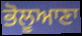
ਭੋਲੂਆਣਾ